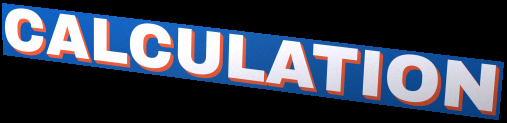
CALCULATION